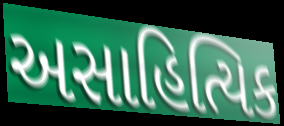
અસાહિત્યિક